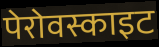
पेरोवस्काइट